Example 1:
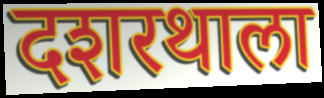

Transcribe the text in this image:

दशरथाला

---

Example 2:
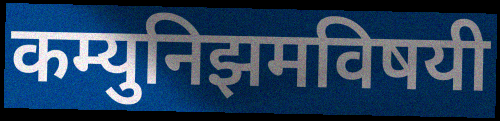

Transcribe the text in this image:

कम्युनिझमविषयी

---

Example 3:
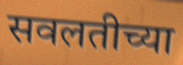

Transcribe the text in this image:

सवलतीच्या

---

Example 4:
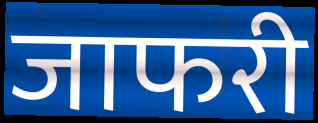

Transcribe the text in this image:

जाफरी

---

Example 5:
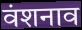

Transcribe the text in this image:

वंशनाव